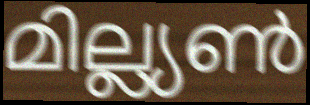
മില്ല്യൺ